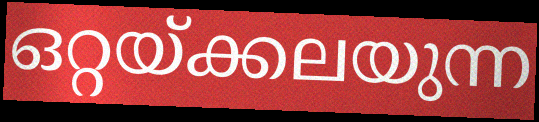
ഒറ്റയ്ക്കലയുന്ന